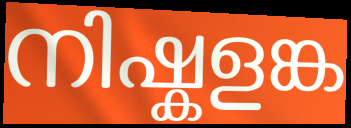
നിഷ്കളങ്ക